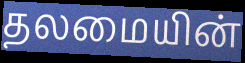
தலமையின்